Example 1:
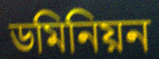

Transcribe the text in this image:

ডমিনিয়ন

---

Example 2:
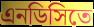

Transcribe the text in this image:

এনডিসিতে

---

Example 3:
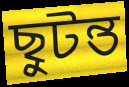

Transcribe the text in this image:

ছুটন্ত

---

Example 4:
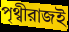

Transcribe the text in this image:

পৃথ্বীরাজই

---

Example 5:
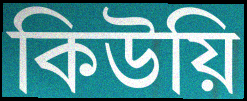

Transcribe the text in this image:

কিউয়ি